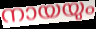
നായയും